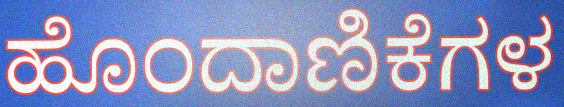
ಹೊಂದಾಣಿಕೆಗಳ